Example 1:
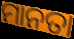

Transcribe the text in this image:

ମାନତା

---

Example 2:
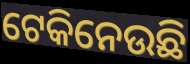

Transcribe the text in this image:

ଟେକିନେଉଛି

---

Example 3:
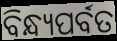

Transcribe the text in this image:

ବିନ୍ଧ୍ୟପର୍ବତ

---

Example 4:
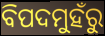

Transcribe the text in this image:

ବିପଦମୁହଁରୁ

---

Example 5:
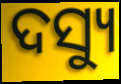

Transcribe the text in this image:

ଦସ୍ୟୁ